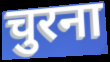
चुरना